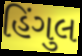
હિંગુલ